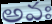
అవః